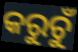
କରୁଚୁଁ